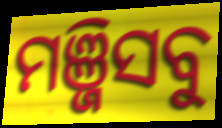
ମଞ୍ଜିସବୁ